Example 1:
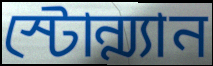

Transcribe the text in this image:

স্টোন্ম্যান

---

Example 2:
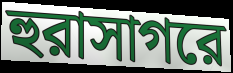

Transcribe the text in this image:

হুরাসাগরে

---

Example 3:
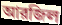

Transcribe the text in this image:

আরজিল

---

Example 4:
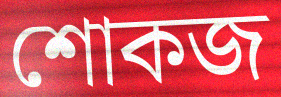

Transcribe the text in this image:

শোকজ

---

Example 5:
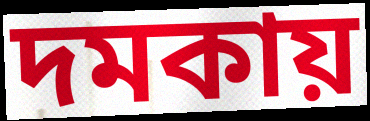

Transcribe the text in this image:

দমকায়